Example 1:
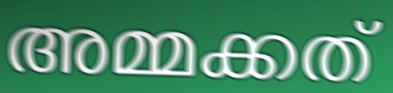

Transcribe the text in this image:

അമ്മക്കത്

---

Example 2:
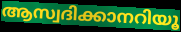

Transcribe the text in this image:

ആസ്വദിക്കാനറിയൂ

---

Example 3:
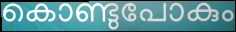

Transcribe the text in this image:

കൊണ്ടുപോകും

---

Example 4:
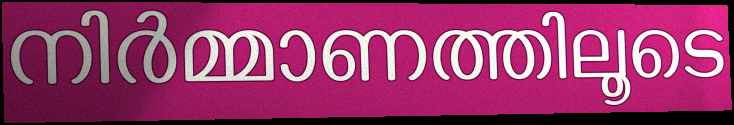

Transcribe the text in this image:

നിർമ്മാണത്തിലൂടെ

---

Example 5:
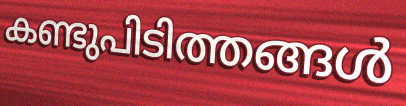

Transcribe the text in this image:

കണ്ടുപിടിത്തങ്ങൾ